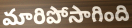
మారిపోసాగింది